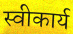
स्वीकार्य